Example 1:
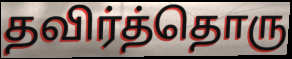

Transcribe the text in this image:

தவிர்த்தொரு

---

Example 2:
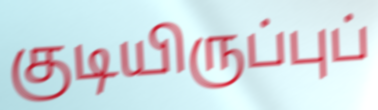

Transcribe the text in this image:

குடியிருப்புப்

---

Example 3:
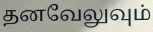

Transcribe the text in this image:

தனவேலுவும்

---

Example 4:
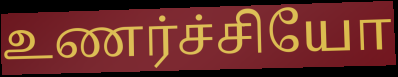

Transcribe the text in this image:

உணர்ச்சியோ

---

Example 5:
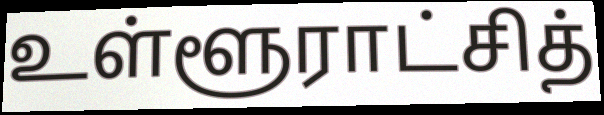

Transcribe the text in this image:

உள்ளூராட்சித்